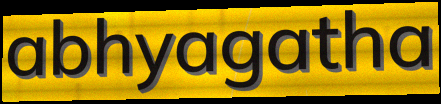
abhyagatha